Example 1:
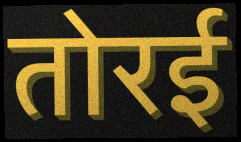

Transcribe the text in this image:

तोरई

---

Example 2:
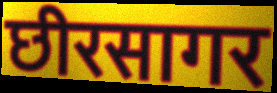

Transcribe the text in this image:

छीरसागर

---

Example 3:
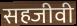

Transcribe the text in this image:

सहजीवी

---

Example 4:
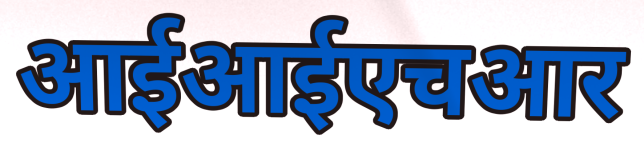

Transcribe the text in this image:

आईआईएचआर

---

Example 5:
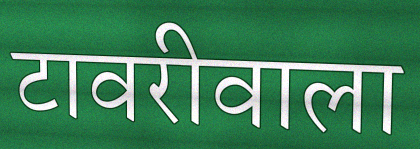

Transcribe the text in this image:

टावरीवाला